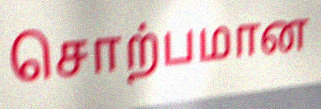
சொற்பமான